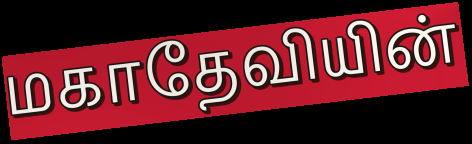
மகாதேவியின்